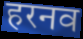
हरनव